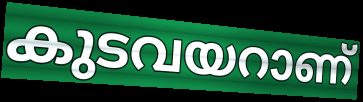
കുടവയറാണ്